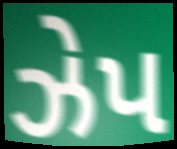
ઝેપ